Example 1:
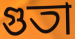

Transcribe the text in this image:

গুতা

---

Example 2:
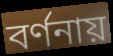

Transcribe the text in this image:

বর্ণনায়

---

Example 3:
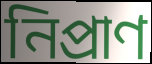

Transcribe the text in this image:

নিপ্রাণ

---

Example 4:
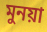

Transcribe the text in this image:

মুনয়া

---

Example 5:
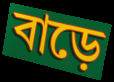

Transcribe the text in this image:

বাড়ে